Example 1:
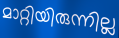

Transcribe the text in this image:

മാറ്റിയിരുന്നില്ല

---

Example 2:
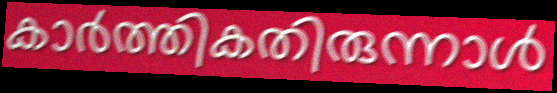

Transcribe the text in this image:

കാർത്തികതിരുന്നാൾ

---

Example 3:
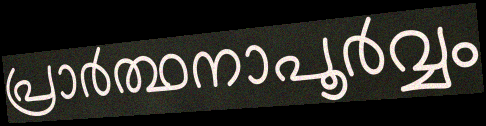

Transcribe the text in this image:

പ്രാർത്ഥനാപൂർവ്വം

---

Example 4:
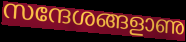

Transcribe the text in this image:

സന്ദേശങ്ങളാണു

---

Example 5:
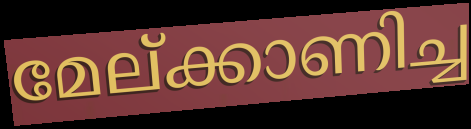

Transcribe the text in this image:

മേല്ക്കാണിച്ച